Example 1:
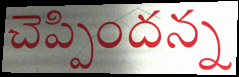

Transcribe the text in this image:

చెప్పిందన్న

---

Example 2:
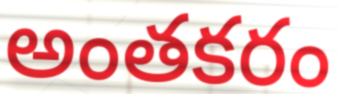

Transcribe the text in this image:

అంతకరం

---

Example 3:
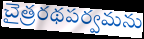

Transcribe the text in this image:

చైత్రరథపర్వమను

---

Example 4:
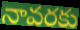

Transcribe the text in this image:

నావరకు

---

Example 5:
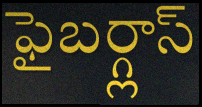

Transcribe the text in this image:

ఫైబర్గ్లాస్